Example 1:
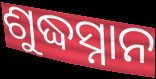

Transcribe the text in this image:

ଶୁଦ୍ଧସ୍ନାନ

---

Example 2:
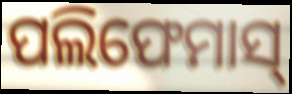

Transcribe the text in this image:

ପଲିଫେମାସ୍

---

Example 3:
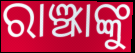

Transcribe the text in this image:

ରାଞ୍ଝାଙ୍କୁ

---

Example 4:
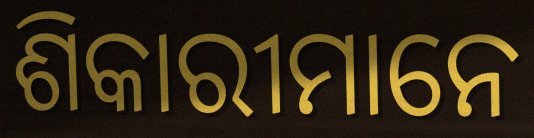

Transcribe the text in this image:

ଶିକାରୀମାନେ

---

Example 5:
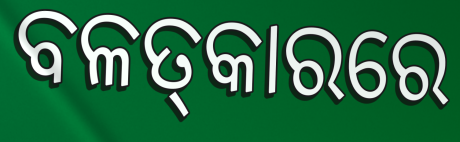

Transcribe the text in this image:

ବଳତ୍‌କାରରେ